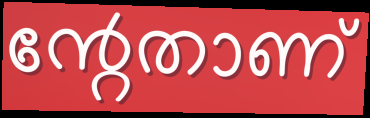
ന്റേതാണ്